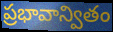
ప్రభావాన్వితం